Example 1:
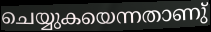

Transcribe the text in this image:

ചെയ്യുകയെന്നതാണു്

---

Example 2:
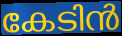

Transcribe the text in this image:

കേടിൻ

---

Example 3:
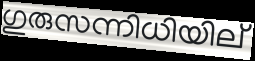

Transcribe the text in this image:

ഗുരുസന്നിധിയില്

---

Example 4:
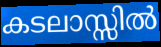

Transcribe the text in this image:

കടലാസ്സിൽ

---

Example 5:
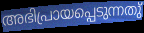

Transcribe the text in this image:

അഭിപ്രായപ്പെടുന്നതു്